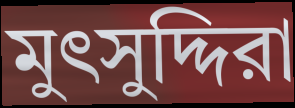
মুৎসুদ্দিরা